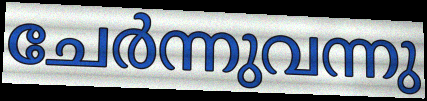
ചേർന്നുവന്നു